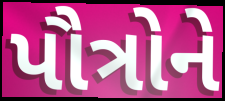
પૌત્રોને